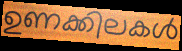
ഉണക്കിലകൾ